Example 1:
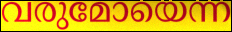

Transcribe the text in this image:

വരുമോയെന്ന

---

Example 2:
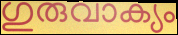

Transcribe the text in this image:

ഗുരുവാക്യം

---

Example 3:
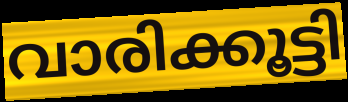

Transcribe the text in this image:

വാരിക്കൂട്ടി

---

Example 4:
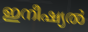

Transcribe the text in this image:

ഇനീഷ്യൽ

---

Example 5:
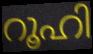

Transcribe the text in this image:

റൂഹി